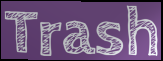
Trash